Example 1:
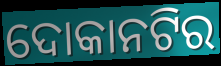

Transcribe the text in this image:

ଦୋକାନଟିର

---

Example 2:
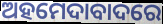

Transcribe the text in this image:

ଅହମେଦାବାଦରେ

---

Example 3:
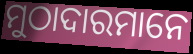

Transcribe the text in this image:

ମୁଠାଦାରମାନେ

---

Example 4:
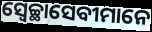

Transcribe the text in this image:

ସ୍ୱେଚ୍ଛାସେବୀମାନେ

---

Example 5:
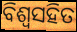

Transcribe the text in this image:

ବିଶ୍ଵସହିତ